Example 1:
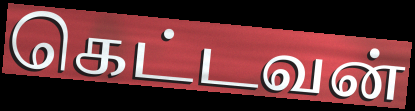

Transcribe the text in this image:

கெட்டவன்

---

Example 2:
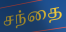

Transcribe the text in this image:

சந்தை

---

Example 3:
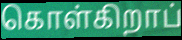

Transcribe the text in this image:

கொள்கிறாப்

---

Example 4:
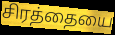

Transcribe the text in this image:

சிரத்தையை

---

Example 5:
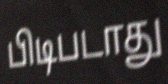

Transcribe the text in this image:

பிடிபடாது